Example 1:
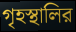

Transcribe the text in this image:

গৃহস্থালির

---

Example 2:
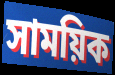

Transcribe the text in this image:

সাময়িক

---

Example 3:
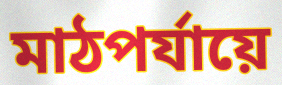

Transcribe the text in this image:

মাঠপর্যায়ে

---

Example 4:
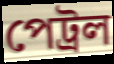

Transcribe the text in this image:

পেট্রল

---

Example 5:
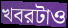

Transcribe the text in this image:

খবরটাও